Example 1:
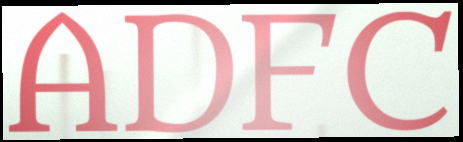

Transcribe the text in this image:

ADFC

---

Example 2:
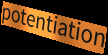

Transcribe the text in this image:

potentiation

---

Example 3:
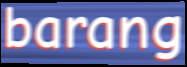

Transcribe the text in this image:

barang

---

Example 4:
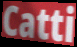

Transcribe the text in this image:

Catti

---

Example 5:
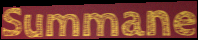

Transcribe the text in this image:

Summane